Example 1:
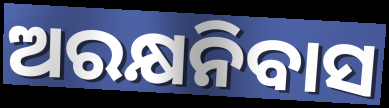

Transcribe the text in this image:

ଅରକ୍ଷନିବାସ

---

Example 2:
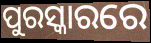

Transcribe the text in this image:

ପୁରସ୍କାରରେ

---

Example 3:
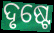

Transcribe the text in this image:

ଦୃଷ୍ଟେ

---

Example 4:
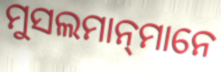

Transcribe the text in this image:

ମୁସଲମାନ୍‌ମାନେ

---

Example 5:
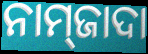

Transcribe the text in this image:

ନାମ୍‍ଜାଦା